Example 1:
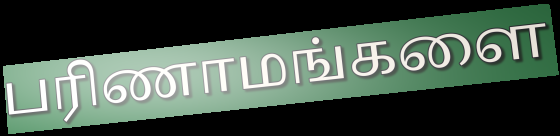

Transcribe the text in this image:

பரிணாமங்களை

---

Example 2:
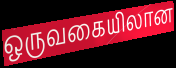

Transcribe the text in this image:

ஒருவகையிலான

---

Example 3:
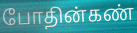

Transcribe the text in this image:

போதின்கண்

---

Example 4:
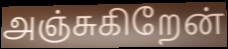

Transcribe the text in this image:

அஞ்சுகிறேன்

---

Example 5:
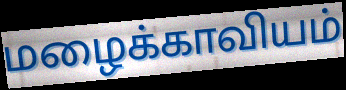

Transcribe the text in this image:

மழைக்காவியம்